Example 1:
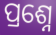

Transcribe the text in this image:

ପ୍ରଶ୍ନେ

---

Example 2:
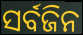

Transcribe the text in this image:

ସର୍ବଜିନ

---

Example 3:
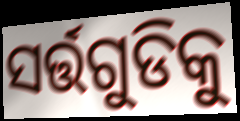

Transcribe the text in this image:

ସର୍ତ୍ତଗୁଡିକୁ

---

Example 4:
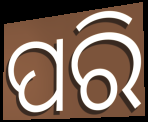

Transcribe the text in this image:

ପରି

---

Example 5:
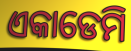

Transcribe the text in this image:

ଏକାଡେମି